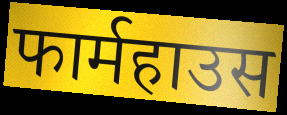
फार्महाउस